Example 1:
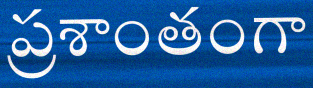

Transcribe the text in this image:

ప్రశాంతంగా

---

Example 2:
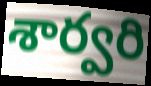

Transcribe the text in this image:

శార్వరి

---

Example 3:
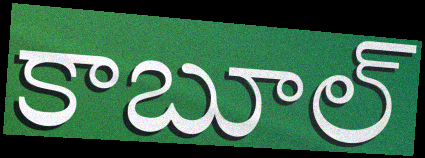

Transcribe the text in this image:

కాబూల్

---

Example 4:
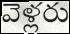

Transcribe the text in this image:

వెళ్లరు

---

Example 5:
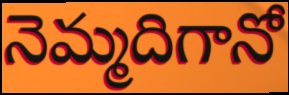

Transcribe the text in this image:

నెమ్మదిగానో